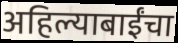
अहिल्याबाईंचा